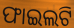
ଫାଇଲଟି